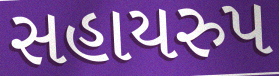
સહાયરુપ